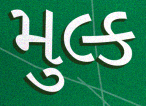
મુલ્ક